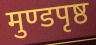
मुण्डपृष्ठ